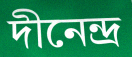
দীনেন্দ্র